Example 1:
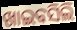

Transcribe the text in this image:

ଖାଇବସିଲି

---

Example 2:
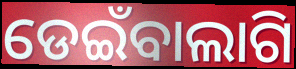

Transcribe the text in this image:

ଡେଇଁବାଲାଗି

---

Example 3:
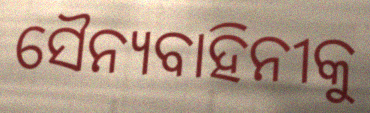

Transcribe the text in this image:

ସୈନ୍ୟବାହିନୀକୁ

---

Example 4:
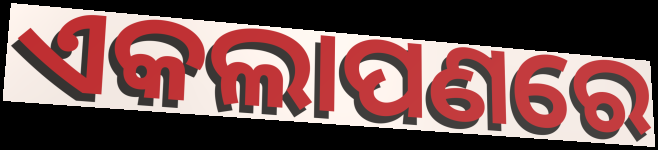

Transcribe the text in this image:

ଏକଲାପଣରେ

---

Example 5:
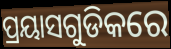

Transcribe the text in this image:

ପ୍ରୟାସଗୁଡିକରେ